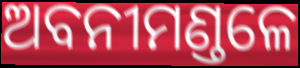
ଅବନୀମଣ୍ଡଳେ